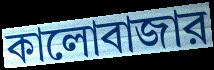
কালোবাজার